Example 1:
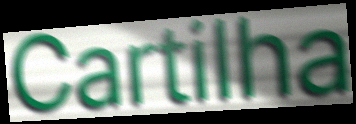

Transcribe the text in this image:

Cartilha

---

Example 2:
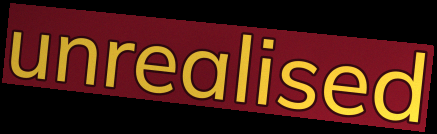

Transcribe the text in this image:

unrealised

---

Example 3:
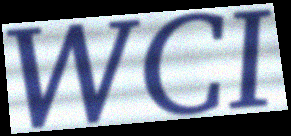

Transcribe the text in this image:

WCI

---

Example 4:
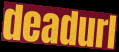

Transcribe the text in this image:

deadurl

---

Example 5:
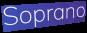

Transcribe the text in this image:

Soprano